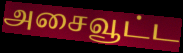
அசைவூட்ட